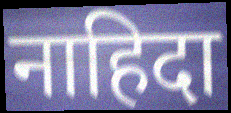
नाहिदा